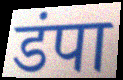
डंपा